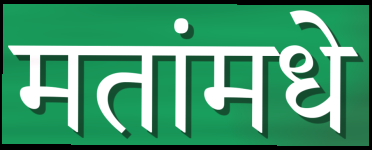
मतांमधे